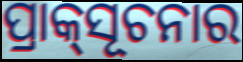
ପ୍ରାକ୍‌ସୂଚନାର